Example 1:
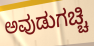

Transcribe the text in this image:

ಅವುಡುಗಚ್ಚಿ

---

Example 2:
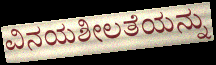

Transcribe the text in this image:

ವಿನಯಶೀಲತೆಯನ್ನು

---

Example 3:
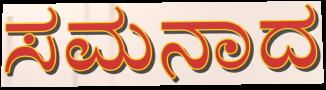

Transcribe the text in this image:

ಸಮನಾದ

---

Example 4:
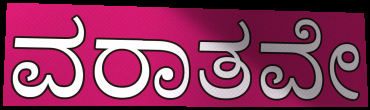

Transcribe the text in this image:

ವರಾತವೇ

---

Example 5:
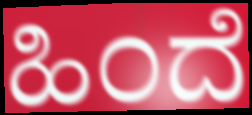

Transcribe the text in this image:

ಹಿಂದೆ